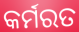
କର୍ମରତ